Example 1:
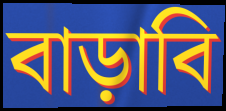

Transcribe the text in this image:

বাড়াবি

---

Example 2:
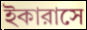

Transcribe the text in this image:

ইকারাসে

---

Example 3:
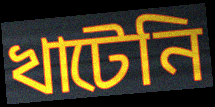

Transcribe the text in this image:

খাটেনি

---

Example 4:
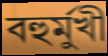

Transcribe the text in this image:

বহুর্মুখী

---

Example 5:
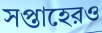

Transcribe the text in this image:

সপ্তাহেরও